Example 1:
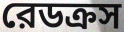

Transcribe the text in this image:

রেডক্রস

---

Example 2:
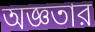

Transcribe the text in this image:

অজ্ঞতার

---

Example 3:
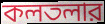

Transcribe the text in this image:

কলতলার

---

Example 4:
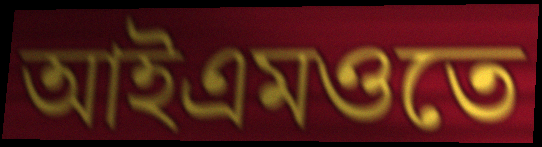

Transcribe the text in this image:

আইএমওতে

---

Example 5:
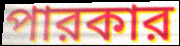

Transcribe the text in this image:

পারকার